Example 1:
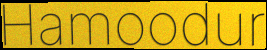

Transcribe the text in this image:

Hamoodur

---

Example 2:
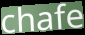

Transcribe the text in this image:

chafe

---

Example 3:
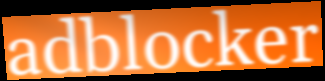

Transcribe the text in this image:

adblocker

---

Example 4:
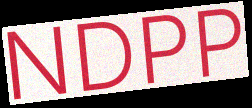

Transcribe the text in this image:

NDPP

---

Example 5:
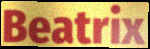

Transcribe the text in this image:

Beatrix